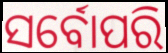
ସର୍ବୋପରି